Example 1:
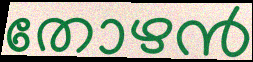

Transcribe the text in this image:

തോഴൻ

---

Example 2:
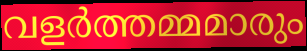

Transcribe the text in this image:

വളർത്തമ്മമാരും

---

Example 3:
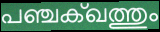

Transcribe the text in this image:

പഞ്ചക്ഖത്തും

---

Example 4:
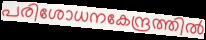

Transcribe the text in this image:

പരിശോധനകേന്ദ്രത്തിൽ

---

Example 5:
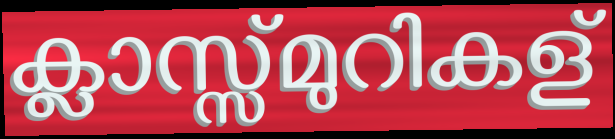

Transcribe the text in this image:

ക്ലാസ്സ്മുറികള്